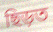
ছিড়ত